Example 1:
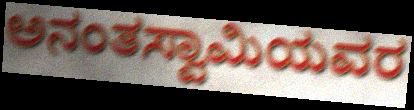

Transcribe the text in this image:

ಅನಂತಸ್ವಾಮಿಯವರ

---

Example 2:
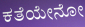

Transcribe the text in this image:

ಕತೆಯೇನೋ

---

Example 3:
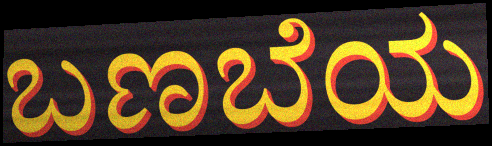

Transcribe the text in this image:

ಬಣಬೆಯ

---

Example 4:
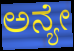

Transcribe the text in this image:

ಅನ್ಯೇ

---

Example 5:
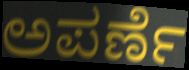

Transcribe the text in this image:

ಅಪರ್ಣೆ